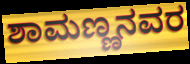
ಶಾಮಣ್ಣನವರ